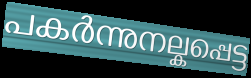
പകർന്നുനല്കപ്പെട്ട